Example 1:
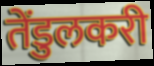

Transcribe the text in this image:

तेंडुलकरी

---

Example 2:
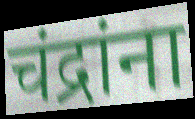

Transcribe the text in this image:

चंद्रांना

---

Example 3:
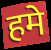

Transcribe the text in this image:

हमे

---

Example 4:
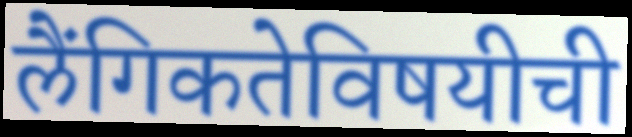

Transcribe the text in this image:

लैंगिकतेविषयीची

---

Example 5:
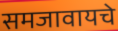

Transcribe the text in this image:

समजावायचे